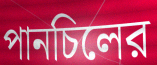
পানচিলের